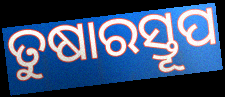
ତୁଷାରସ୍ତୂପ